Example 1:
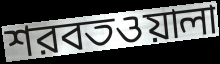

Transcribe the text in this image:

শরবতওয়ালা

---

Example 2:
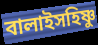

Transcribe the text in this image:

বালাইসহিষ্ণু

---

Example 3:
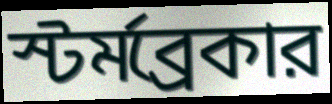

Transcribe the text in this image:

স্টর্মব্রেকার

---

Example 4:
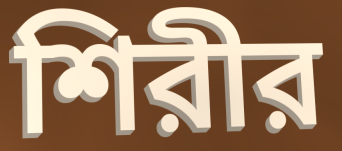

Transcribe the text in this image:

শিরীর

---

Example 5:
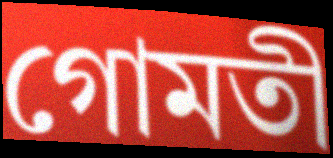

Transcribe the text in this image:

গোমতী